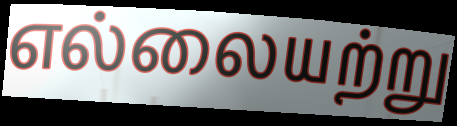
எல்லையற்று